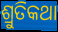
ଶ୍ରୁତିକଥା